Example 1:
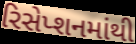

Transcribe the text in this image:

રિસેપ્શનમાંથી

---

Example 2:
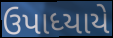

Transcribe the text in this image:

ઉપાધ્યાયે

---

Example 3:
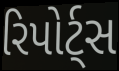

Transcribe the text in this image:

રિપોર્ટ્સ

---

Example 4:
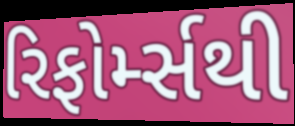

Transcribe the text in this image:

રિફોર્મ્સથી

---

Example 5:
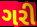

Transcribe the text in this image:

ગરી